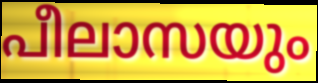
പീലാസയും